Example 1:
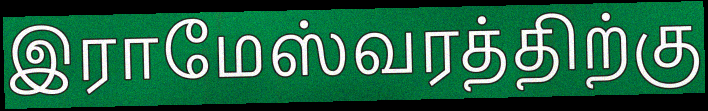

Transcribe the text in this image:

இராமேஸ்வரத்திற்கு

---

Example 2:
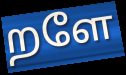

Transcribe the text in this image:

றளே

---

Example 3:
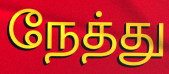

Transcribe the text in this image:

நேத்து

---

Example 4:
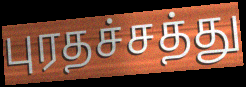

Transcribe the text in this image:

புரதச்சத்து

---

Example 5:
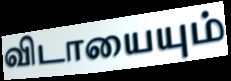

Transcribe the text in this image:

விடாயையும்